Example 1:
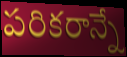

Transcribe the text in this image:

పరికరాన్నే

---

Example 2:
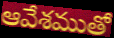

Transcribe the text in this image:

ఆవేశముతో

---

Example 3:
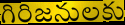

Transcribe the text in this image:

గిరిజనులకు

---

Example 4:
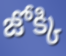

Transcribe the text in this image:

జోక్కి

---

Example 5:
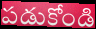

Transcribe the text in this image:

పడుకోండి